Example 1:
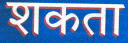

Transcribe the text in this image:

शकता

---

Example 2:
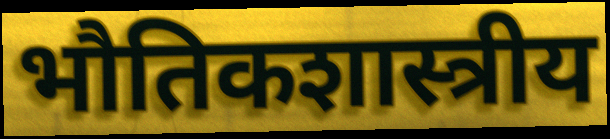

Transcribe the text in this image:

भौतिकशास्त्रीय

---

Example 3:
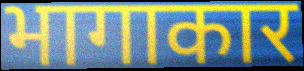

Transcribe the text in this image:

भागाकार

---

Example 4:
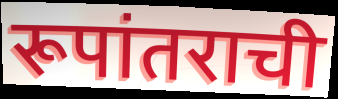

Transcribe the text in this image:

रूपांतराची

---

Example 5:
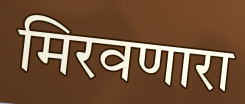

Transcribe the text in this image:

मिरवणारा